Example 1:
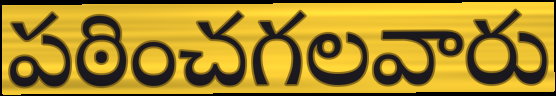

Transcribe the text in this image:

పఠించగలవారు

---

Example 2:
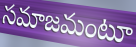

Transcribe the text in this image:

సమాజమంటూ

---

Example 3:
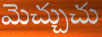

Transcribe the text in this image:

మెచ్చుచు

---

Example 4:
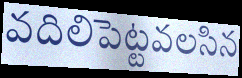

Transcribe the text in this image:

వదిలిపెట్టవలసిన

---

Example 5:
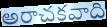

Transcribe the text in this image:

అరాచకవాది